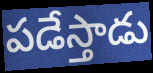
పడేస్తాడు